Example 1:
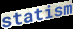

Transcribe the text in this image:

statism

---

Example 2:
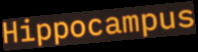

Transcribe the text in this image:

Hippocampus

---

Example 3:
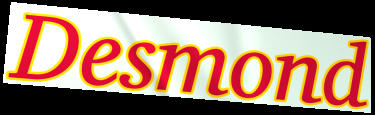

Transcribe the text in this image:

Desmond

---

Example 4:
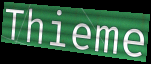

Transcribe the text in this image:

Thieme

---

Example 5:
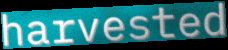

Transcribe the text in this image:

harvested